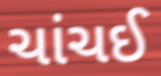
ચાંચઈ